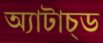
অ্যাটাচ্ড